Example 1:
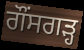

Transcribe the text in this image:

ਗੌਂਸਗੜ੍ਹ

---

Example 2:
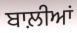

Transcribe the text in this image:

ਬਾਲ਼ੀਆਂ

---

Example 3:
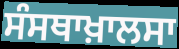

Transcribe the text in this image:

ਸੰਸਥਾਖ਼ਾਲਸਾ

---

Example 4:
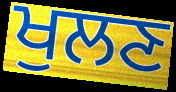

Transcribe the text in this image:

ਖੁਲਣ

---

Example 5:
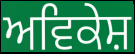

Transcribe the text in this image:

ਅਵਿਕੇਸ਼